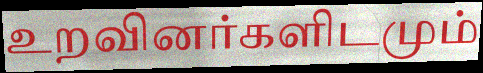
உறவினர்களிடமும்